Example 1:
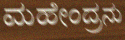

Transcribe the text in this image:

ಮಹೇಂದ್ರನು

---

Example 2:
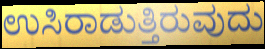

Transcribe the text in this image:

ಉಸಿರಾಡುತ್ತಿರುವುದು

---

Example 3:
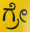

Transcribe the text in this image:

ಗ್ರೇ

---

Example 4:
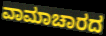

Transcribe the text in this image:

ವಾಮಾಚಾರದ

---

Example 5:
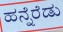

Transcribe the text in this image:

ಹನ್ನೆರೆಡು